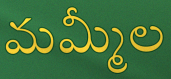
మమ్మీల